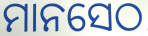
ମାନସେଠ